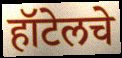
हॉटेलचे